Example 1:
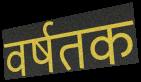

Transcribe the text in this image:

वर्षतक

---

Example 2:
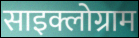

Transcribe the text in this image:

साइक्लोग्राम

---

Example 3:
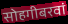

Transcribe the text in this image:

सोहगीबरवां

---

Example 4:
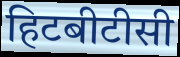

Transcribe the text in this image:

हिटबीटीसी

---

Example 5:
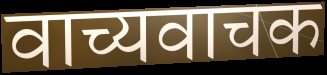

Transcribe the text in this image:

वाच्यवाचक